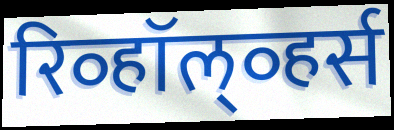
रिव्हॉल्व्हर्स